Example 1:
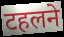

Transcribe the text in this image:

टहलने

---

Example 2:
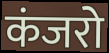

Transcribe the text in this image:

कंजरो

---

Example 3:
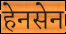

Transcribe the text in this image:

हेनसेन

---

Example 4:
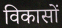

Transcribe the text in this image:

विकासों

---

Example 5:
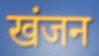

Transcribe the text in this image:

खंजन